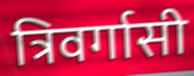
त्रिवर्गासी